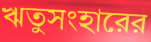
ঋতুসংহারের